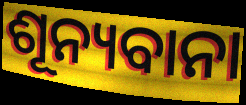
ଶୂନ୍ୟବାନା